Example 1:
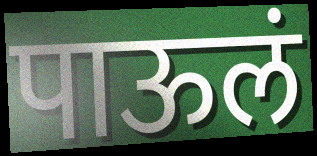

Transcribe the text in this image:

पाऊलं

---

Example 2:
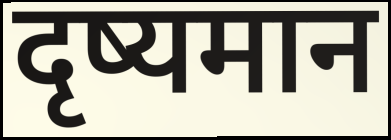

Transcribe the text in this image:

दृष्यमान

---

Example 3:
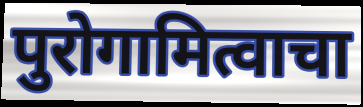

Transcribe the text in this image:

पुरोगामित्वाचा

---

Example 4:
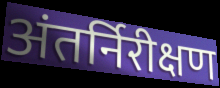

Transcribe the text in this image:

अंतर्निरीक्षण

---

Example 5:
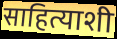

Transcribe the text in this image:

साहित्याशी